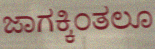
ಜಾಗಕ್ಕಿಂತಲೂ